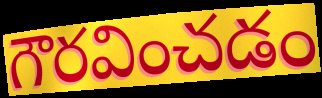
గౌరవించడం